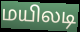
மயிலடி